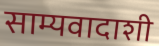
साम्यवादाशी